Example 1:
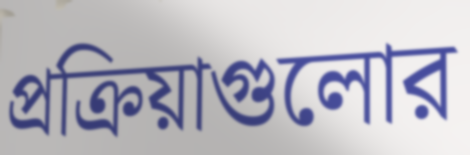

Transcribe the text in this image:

প্রক্রিয়াগুলোর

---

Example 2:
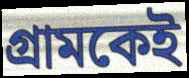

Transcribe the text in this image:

গ্রামকেই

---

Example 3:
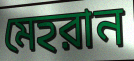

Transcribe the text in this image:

মেহরান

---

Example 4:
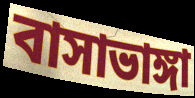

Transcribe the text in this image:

বাসাভাঙ্গা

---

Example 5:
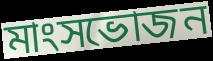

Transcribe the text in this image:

মাংসভোজন